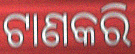
ଟାଣକରି